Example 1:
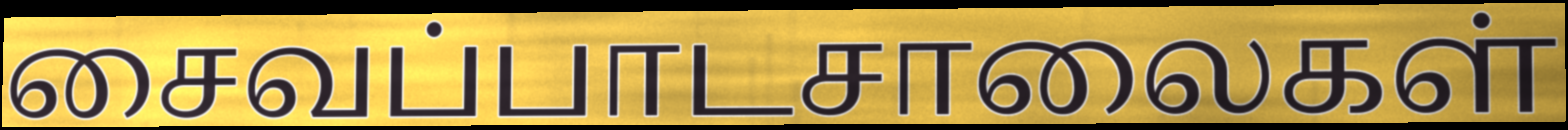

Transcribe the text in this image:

சைவப்பாடசாலைகள்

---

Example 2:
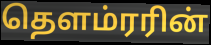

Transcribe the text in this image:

தௌம்ரரின்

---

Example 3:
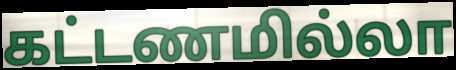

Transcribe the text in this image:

கட்டணமில்லா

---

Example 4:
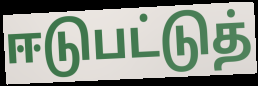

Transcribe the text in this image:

ஈடுபட்டுத்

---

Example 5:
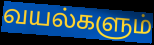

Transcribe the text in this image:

வயல்களும்